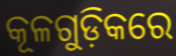
କୂଳଗୁଡ଼ିକରେ